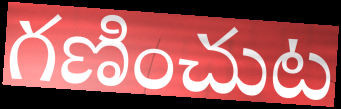
గణించుట